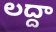
లద్దా